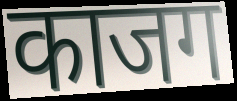
काजग